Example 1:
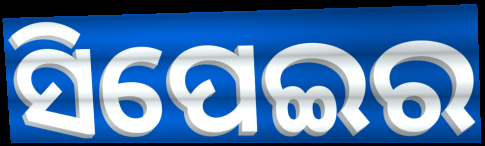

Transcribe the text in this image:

ସିପେଇର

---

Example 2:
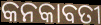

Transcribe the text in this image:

କନକାବତୀ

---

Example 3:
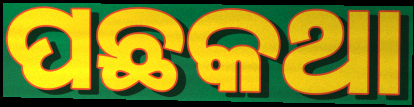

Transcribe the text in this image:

ପଛକଥା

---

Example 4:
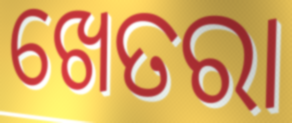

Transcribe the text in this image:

ଖେତରା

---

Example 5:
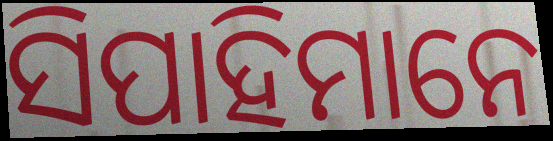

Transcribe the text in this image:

ସିପାହିମାନେ